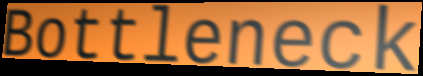
Bottleneck